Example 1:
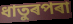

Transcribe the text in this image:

ধাতুৰপৰা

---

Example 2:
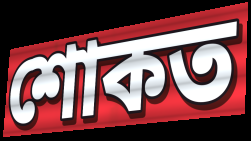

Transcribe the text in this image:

শোকত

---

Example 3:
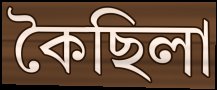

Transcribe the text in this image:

কৈছিলা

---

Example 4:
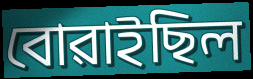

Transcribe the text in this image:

বোৱাইছিল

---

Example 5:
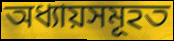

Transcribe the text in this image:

অধ্যায়সমূহত